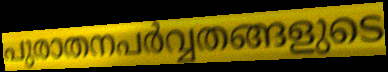
പുരാതനപർവ്വതങ്ങളുടെ